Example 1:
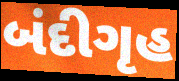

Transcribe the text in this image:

બંદીગૃહ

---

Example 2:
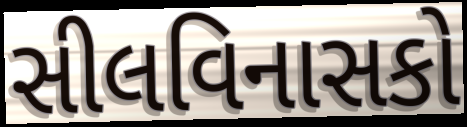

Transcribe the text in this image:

સીલવિનાસકો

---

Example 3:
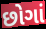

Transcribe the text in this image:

છોગાં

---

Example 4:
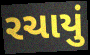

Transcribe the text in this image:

રચાયું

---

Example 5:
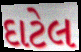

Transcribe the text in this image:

દાટેલ